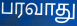
பரவாது